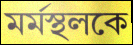
মর্মস্থলকে